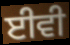
ਈਵੀ